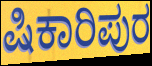
ಷಿಕಾರಿಪುರ